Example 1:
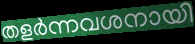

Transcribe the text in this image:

തളർന്നവശനായി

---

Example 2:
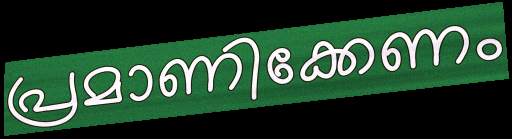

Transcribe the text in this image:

പ്രമാണിക്കേണം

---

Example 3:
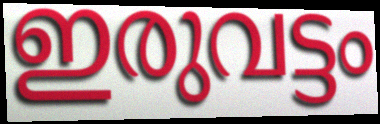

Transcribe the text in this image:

ഇരുവട്ടം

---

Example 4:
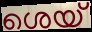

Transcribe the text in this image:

ശെയ്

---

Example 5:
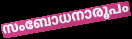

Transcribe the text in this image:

സംബോധനാരൂപം